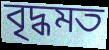
বৃদ্ধমত